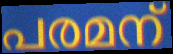
പരമന്